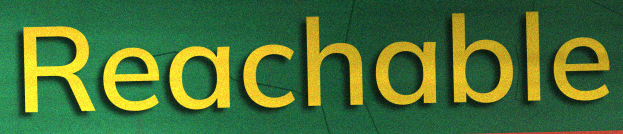
Reachable